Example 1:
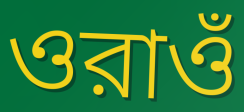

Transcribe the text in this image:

ওরাওঁ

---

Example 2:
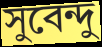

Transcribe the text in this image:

সুবেন্দু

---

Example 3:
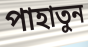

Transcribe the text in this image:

পাহাতুন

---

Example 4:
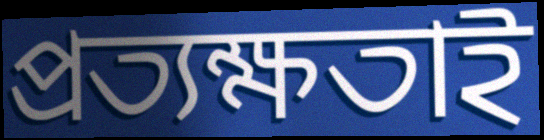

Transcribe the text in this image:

প্রত্যক্ষতাই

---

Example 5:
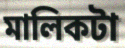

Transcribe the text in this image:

মালিকটা